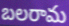
బలరామ